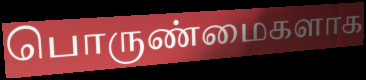
பொருண்மைகளாக